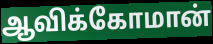
ஆவிக்கோமான்